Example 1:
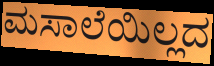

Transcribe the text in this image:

ಮಸಾಲೆಯಿಲ್ಲದ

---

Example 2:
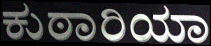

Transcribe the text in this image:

ಕುಠಾರಿಯಾ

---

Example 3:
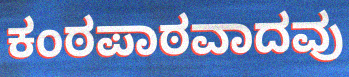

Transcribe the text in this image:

ಕಂಠಪಾಠವಾದವು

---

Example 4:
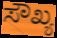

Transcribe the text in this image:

ಸೌಖ್ಯ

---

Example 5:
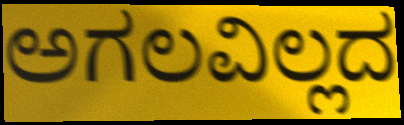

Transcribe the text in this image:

ಅಗಲವಿಲ್ಲದ